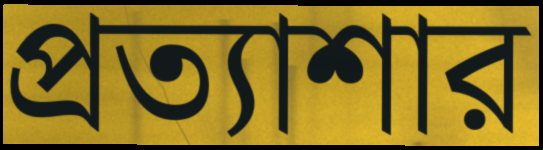
প্রত্যাশার